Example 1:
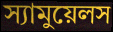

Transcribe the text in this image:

স্যামুয়েলস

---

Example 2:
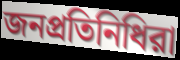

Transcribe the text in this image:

জনপ্রতিনিধিরা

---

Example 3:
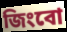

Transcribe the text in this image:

জিংবো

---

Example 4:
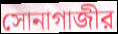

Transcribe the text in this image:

সোনাগাজীর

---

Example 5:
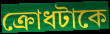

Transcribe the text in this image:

ক্রোধটাকে